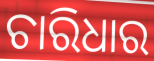
ଚାରିଧାର